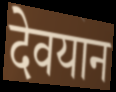
देवयान